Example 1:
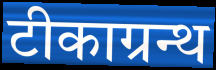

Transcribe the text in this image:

टीकाग्रन्थ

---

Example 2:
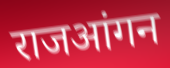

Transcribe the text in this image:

राजआंगन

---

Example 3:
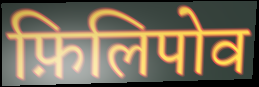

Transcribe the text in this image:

फ़िलिपोव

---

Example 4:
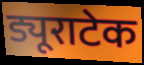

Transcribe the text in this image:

ड्यूराटेक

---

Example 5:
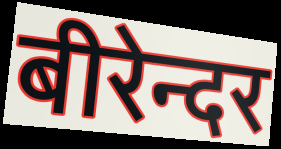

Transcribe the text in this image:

बीरेन्दर